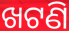
ଖଟଣି